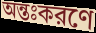
অন্তঃকরণে